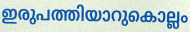
ഇരുപത്തിയാറുകൊല്ലം